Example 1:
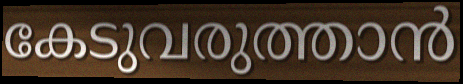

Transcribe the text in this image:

കേടുവരുത്താൻ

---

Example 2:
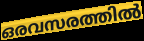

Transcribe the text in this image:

ഒരവസരത്തിൽ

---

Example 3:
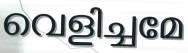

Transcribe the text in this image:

വെളിച്ചമേ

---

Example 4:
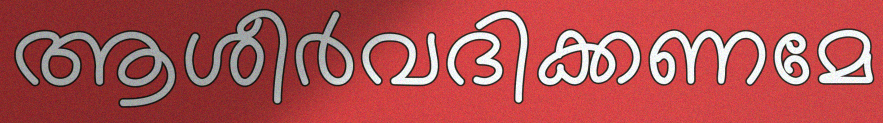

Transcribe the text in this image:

ആശീർവദിക്കണമേ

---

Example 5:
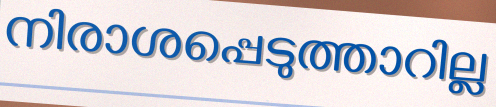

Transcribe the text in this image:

നിരാശപ്പെടുത്താറില്ല